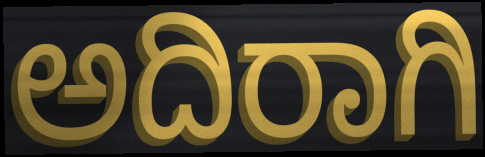
ಅದಿರಾಗಿ